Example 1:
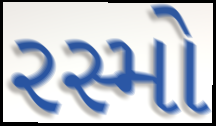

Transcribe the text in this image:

રસ્મો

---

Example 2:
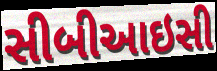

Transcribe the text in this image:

સીબીઆઇસી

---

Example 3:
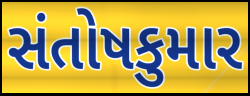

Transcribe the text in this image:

સંતોષકુમાર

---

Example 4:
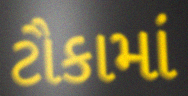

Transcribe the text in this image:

ટૌકામાં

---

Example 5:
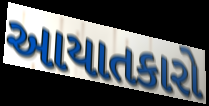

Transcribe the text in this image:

આયાતકારો